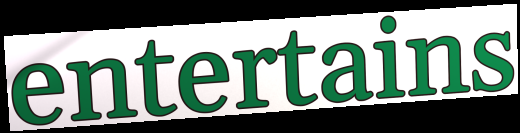
entertains